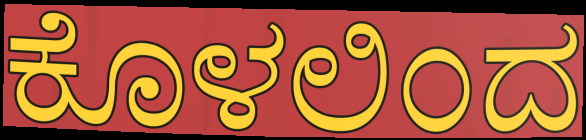
ಕೊಳಲಿಂದ